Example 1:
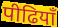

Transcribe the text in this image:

पीढियाँ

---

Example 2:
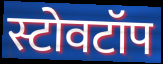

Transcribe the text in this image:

स्टोवटॉप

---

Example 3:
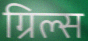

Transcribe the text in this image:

ग्रिल्स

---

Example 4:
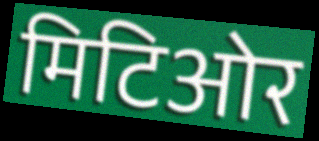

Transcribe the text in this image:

मिटिओर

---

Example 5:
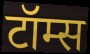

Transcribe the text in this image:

टॉम्स